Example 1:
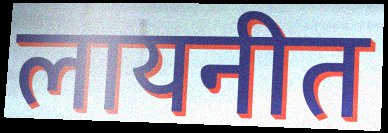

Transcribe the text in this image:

लायनीत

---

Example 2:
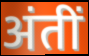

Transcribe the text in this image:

अंतीं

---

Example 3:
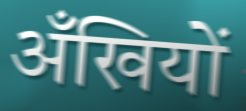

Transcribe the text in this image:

अँखियों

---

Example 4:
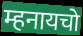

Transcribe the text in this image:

म्हनायचो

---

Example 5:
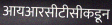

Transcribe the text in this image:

आयआरसीटीसीकडून